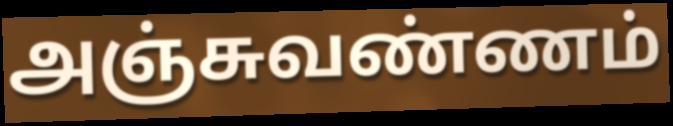
அஞ்சுவண்ணம்